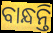
ବାନ୍ଧନ୍ତି